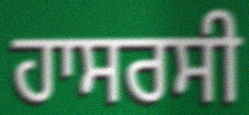
ਹਾਸਰਸੀ